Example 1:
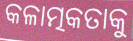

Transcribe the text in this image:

କଳାତ୍ମକତାକୁ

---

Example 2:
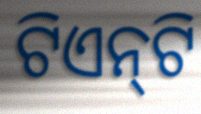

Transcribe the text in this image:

ଟିଏନ୍‌ଟି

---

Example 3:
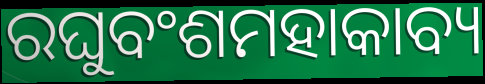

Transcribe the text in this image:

ରଘୁବଂଶମହାକାବ୍ୟ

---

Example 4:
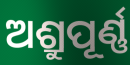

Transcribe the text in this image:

ଅଶ୍ରୁପୂର୍ଣ୍ଣ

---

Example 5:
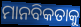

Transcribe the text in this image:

ମାନବିକତାକୁ